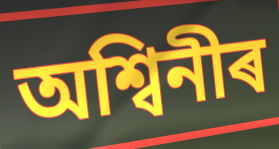
অশ্বিনীৰ